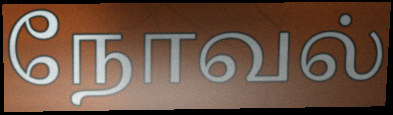
நோவல்